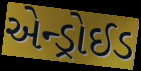
એન્ડ્રોઈડ